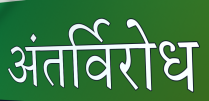
अंतर्विरोध